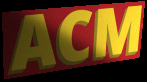
ACM